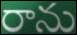
రాను